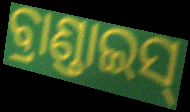
ବ୍ରାଣ୍ଡାଇସ୍